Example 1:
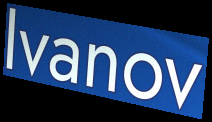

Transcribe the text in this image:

Ivanov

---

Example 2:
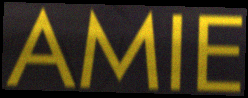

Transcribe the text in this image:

AMIE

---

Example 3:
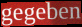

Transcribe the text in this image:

gegeben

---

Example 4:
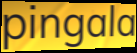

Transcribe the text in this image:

pingala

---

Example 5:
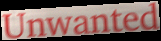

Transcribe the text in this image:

Unwanted